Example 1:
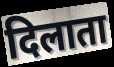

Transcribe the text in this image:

दिलाता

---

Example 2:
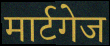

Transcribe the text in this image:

मार्टगेज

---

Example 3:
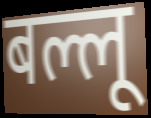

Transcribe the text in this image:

बल्लू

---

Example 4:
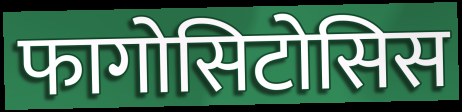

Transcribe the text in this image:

फागोसिटोसिस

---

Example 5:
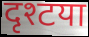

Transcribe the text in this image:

दृश्टया